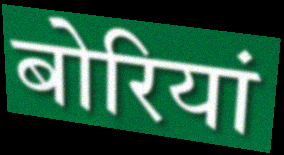
बोरियां